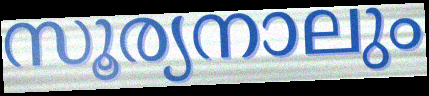
സൂര്യനാലും